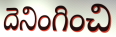
దెనింగించి